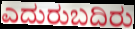
ಎದುರುಬದಿರು